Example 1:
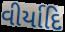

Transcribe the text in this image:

વીર્યાદિ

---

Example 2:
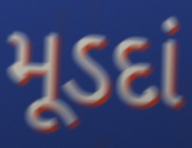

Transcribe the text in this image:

મૂડદાં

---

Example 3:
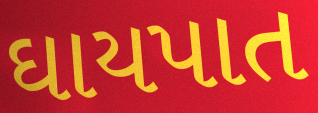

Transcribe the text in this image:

ઘાયપાત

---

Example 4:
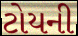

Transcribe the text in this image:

ટોયની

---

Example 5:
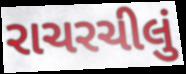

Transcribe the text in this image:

રાચરચીલું